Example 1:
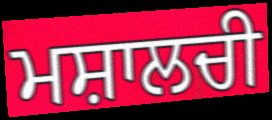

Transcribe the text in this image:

ਮਸ਼ਾਲਚੀ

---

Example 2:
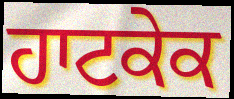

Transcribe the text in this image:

ਹਾਟਕੇਕ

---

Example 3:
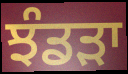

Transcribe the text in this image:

ਝੰਡੜਾ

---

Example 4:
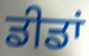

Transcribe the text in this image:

ਡੀਡਾਂ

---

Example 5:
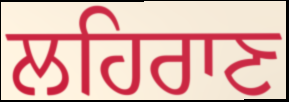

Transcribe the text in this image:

ਲਹਿਰਾਣ